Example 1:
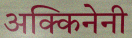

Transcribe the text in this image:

अक्किनेनी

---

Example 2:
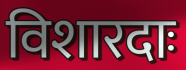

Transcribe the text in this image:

विशारदाः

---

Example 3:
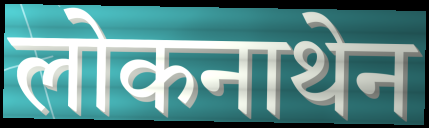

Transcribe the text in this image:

लोकनाथेन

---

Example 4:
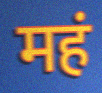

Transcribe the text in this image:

महं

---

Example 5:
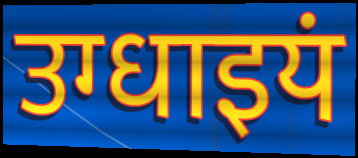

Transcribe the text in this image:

उग्धाइयं